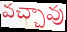
వచ్చావు